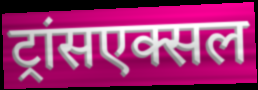
ट्रांसएक्सल